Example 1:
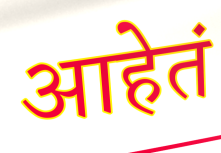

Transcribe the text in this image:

आहेतं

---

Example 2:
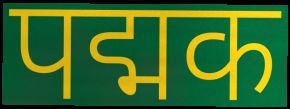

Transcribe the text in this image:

पद्मक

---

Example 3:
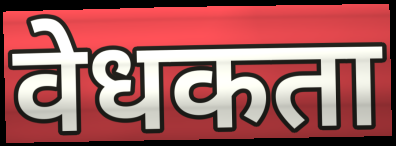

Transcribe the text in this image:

वेधकता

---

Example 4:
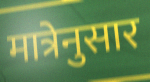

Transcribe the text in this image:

मात्रेनुसार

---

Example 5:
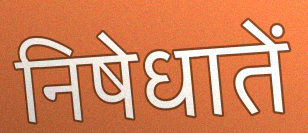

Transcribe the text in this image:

निषेधातें